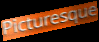
Picturesque